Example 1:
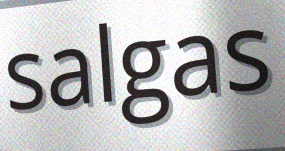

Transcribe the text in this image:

salgas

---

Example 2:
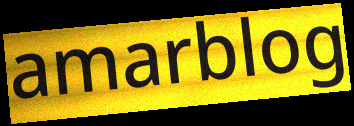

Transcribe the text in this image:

amarblog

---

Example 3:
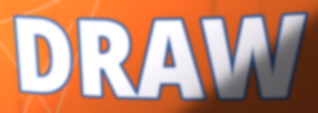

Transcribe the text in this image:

DRAW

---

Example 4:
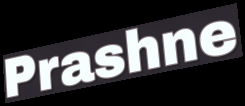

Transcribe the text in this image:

Prashne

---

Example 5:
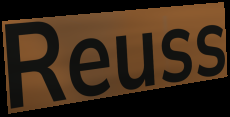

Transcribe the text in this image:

Reuss